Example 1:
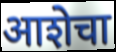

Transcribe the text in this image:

आशेचा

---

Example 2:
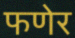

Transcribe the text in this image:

फणेर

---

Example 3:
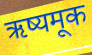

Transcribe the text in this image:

ऋष्यमूक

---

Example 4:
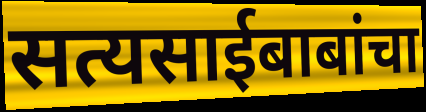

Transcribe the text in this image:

सत्यसाईबाबांचा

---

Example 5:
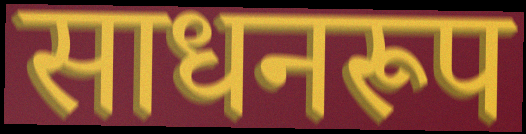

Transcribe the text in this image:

साधनरूप